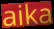
aika